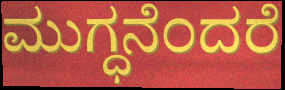
ಮುಗ್ಧನೆಂದರೆ